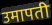
उमापती